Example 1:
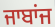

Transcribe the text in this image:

ਜਾਬਾਂਜ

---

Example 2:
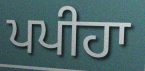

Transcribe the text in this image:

ਪਪੀਹਾ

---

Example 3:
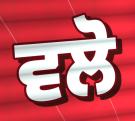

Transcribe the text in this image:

ਵਲੋ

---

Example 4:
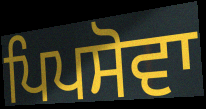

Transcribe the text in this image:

ਪਿਪਸੋਵਾ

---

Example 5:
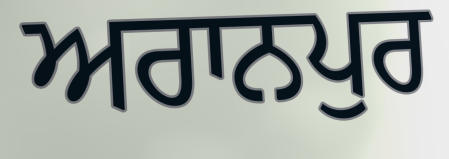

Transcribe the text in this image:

ਅਰਾਨਪੁਰ